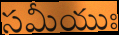
సమీయుః